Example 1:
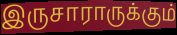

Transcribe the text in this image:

இருசாராருக்கும்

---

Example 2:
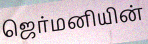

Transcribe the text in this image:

ஜெர்மனியின்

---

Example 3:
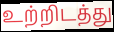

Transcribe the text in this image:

உற்றிடத்து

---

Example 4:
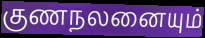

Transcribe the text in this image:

குணநலனையும்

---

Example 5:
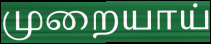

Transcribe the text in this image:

முறையாய்